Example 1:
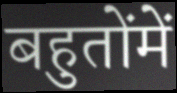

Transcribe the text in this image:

बहुतोंमें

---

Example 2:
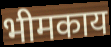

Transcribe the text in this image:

भीमकाय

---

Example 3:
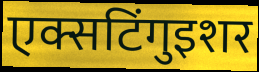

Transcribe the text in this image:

एक्सटिंगुइशर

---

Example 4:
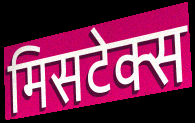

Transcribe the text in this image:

मिसटेक्स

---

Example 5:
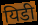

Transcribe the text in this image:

यिडी